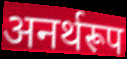
अनर्थरूप